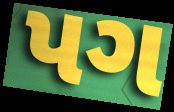
પગ